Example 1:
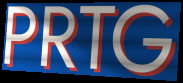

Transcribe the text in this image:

PRTG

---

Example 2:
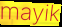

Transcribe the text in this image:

mayik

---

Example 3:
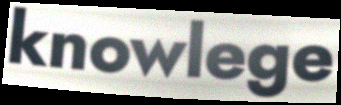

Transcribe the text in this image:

knowlege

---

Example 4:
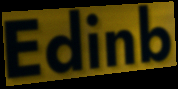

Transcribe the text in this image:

Edinb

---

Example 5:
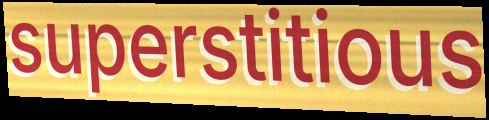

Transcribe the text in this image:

superstitious